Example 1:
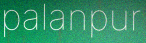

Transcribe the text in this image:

palanpur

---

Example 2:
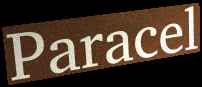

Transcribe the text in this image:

Paracel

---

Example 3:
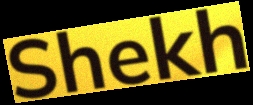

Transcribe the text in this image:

Shekh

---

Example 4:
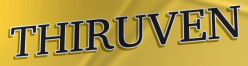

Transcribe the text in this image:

THIRUVEN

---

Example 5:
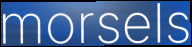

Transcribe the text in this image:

morsels